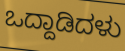
ಒದ್ದಾಡಿದಳು